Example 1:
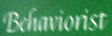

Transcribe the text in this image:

Behaviorist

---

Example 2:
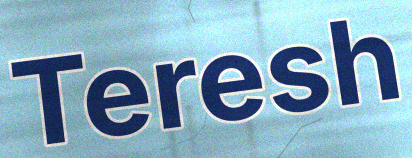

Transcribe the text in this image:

Teresh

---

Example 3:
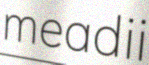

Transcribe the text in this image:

meadii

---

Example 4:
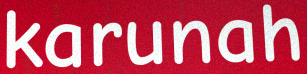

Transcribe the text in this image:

karunah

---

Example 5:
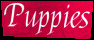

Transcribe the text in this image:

Puppies